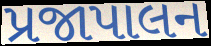
પ્રજાપાલન